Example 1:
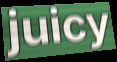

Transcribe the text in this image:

juicy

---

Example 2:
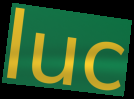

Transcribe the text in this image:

luc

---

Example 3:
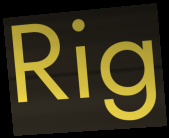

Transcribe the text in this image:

Rig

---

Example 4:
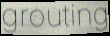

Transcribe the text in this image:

grouting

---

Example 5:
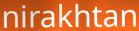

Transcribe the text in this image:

nirakhtan